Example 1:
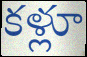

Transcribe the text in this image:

కళ్లూ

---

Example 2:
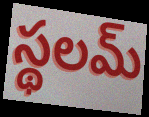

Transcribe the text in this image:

స్థలమ్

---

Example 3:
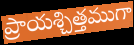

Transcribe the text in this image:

ప్రాయశ్చిత్తముగా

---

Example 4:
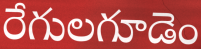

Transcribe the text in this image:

రేగులగూడెం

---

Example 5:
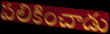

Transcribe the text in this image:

పలికించాడు